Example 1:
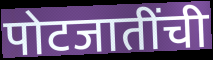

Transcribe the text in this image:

पोटजातींची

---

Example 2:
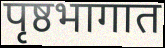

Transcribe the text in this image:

पृष्ठभागात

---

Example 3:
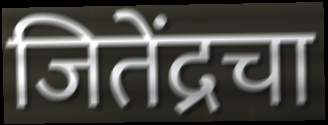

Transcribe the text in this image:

जितेंद्रचा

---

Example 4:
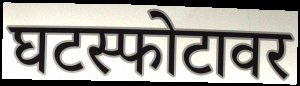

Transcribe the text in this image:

घटस्फोटावर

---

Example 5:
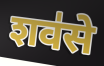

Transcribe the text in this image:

शव॑से